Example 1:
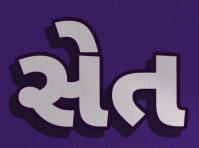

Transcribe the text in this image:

સેત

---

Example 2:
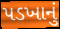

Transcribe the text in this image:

પડખાનું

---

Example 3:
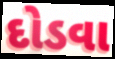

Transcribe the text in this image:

દોડવા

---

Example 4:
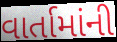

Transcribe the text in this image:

વાર્તામાંની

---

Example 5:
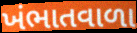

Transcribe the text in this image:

ખંભાતવાળા